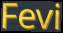
Fevi